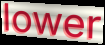
lower